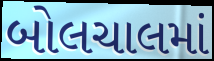
બોલચાલમાં